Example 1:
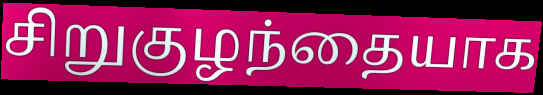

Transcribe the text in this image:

சிறுகுழந்தையாக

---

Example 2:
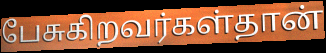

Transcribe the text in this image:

பேசுகிறவர்கள்தான்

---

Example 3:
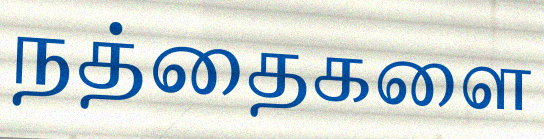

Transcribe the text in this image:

நத்தைகளை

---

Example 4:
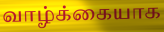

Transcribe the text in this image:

வாழ்க்கையாக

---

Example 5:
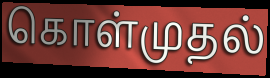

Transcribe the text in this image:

கொள்முதல்